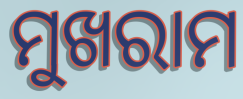
ମୁଖରାମ